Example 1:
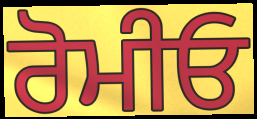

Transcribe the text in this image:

ਰੋਮੀਓ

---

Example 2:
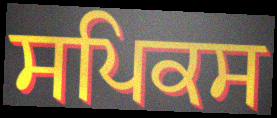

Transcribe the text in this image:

ਸਪਿਕਸ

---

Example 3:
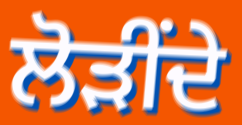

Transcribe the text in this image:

ਲੋੜੀਂਦੇ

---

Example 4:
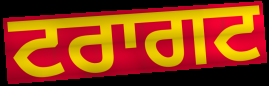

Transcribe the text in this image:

ਟਰਾਗਟ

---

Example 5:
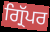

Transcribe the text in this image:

ਗ੍ਰਿੱਪਰ